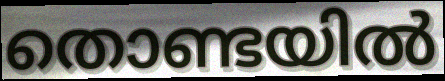
തൊണ്ടയിൽ